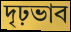
দৃঢ়ভাব